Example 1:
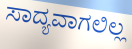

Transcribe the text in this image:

ಸಾದ್ಯವಾಗಲಿಲ್ಲ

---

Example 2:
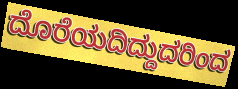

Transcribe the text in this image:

ದೊರೆಯದಿದ್ದುದರಿಂದ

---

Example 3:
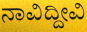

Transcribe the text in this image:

ನಾವಿದ್ದೀವಿ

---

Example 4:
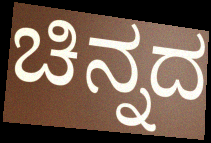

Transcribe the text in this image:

ಚಿನ್ನದ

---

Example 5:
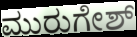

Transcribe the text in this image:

ಮುರುಗೇಶ್